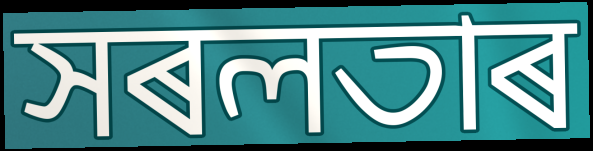
সৰলতাৰ